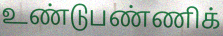
உண்டுபண்ணிக்